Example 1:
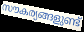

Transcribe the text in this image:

സൗകര്യങ്ങളുണ്ട്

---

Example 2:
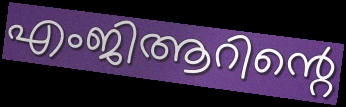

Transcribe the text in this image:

എംജിആറിന്റെ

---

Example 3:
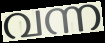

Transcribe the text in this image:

വന്ന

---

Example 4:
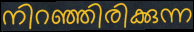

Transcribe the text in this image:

നിറഞ്ഞിരിക്കുന്ന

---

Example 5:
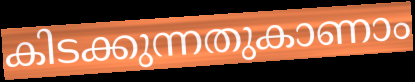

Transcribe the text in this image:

കിടക്കുന്നതുകാണാം